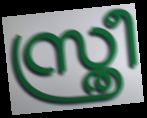
സ്ത്രീ